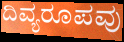
ದಿವ್ಯರೂಪವು